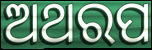
ଅଥରପ